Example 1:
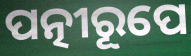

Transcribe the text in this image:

ପତ୍ନୀରୂପେ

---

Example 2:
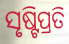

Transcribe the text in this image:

ସୃଷ୍ଟିପ୍ରତି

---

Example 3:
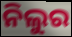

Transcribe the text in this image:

ନିଲୁର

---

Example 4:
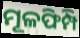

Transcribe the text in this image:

ମୂଳଫିମ୍ପି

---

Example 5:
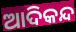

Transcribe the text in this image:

ଆଦିକନ୍ଦ